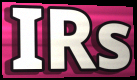
IRs